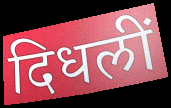
दिधलीं